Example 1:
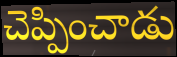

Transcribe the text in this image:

చెప్పించాడు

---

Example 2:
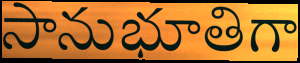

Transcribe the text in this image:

సానుభూతిగా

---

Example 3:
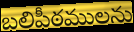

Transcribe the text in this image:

బలిపీఠములను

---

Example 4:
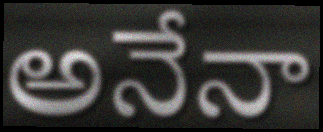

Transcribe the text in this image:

అనేనా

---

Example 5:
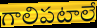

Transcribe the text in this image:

గాలిపటాలే